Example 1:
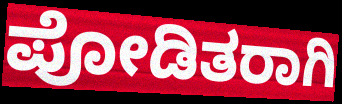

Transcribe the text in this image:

ಪೋಡಿತರಾಗಿ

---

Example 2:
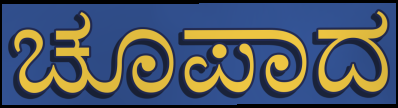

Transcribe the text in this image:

ಚೂಪಾದ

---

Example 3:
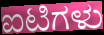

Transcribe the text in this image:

ಐಟಿಗಳು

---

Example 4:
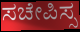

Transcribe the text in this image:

ಸಚೇಪಿಸ್ಸ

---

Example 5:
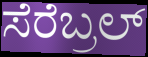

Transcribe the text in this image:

ಸೆರೆಬ್ರಲ್